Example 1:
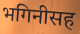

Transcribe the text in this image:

भगिनीसह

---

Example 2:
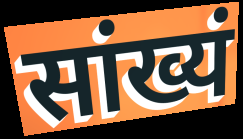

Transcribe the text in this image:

सांख्यं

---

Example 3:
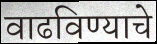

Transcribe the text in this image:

वाढविण्याचे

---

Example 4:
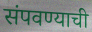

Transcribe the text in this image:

संपवण्याची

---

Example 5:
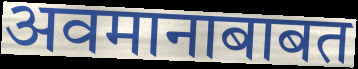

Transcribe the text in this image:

अवमानाबाबत